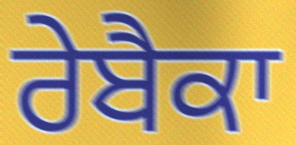
ਰੇਬੈਕਾ